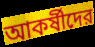
আকর্ষীদের